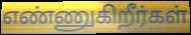
எண்ணுகிறீர்கள்